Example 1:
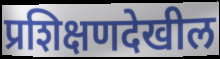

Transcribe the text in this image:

प्रशिक्षणदेखील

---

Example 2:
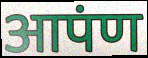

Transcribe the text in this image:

आपंण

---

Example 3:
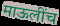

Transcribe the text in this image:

माऊलींच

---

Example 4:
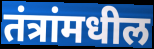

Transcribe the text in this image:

तंत्रांमधील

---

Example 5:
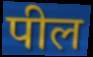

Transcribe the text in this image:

पील